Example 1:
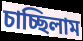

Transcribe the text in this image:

চাচ্ছিলাম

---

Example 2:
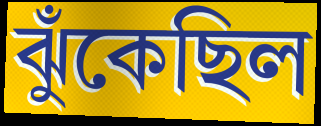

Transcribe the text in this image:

ঝুঁকেছিল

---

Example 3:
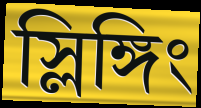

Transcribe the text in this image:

স্লিঙ্গিং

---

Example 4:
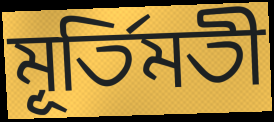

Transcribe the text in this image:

মূর্তিমতী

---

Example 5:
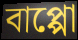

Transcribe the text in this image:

বাপ্পো